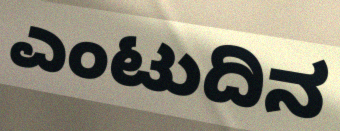
ಎಂಟುದಿನ